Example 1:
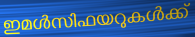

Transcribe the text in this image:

ഇമൾസിഫയറുകൾക്ക്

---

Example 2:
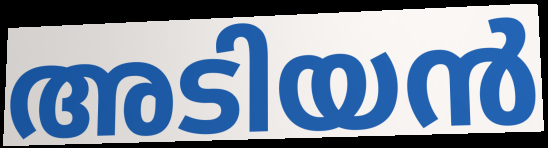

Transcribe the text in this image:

അടിയൻ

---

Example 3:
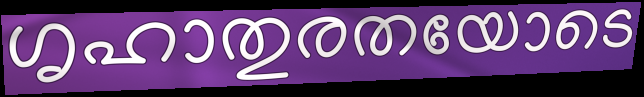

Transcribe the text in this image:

ഗൃഹാതുരതയോടെ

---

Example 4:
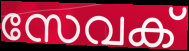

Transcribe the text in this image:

സേവക്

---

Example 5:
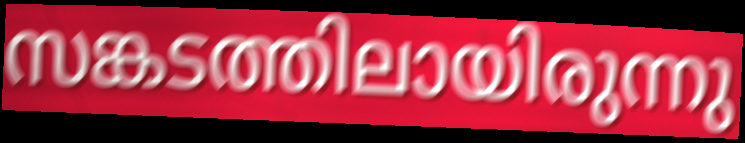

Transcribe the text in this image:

സങ്കടത്തിലായിരുന്നു